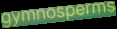
gymnosperms